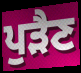
ਪੁੜੈਣ